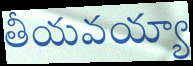
తీయవయ్యా